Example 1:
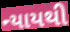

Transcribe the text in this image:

ન્યાયથી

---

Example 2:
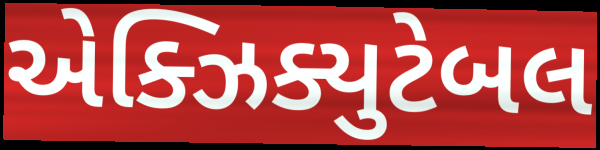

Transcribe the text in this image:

એક્ઝિક્યુટેબલ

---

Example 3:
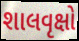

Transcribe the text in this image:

શાલવૃક્ષો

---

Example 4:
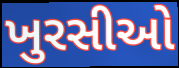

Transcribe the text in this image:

ખુરસીઓ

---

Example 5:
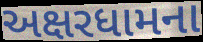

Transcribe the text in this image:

અક્ષરધામના